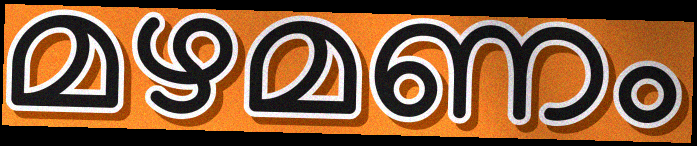
മഴമണം